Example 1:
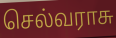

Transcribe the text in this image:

செல்வராசு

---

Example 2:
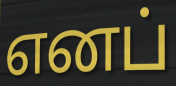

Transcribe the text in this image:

எனப்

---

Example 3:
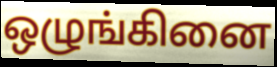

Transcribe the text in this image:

ஒழுங்கினை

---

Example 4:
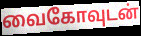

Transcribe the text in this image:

வைகோவுடன்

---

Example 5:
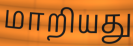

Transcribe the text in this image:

மாறியது